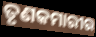
ତୃଣକମାରୀର